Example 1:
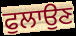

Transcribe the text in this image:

ਫੁਲਾਉਣ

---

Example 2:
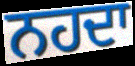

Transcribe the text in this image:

ਨਹਦਾ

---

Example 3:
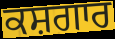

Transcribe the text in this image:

ਕਸ਼ਗਾਰ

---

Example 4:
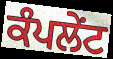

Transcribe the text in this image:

ਕੰਪਲੇਂਟ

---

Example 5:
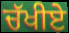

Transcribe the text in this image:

ਚੱਖੀਏ